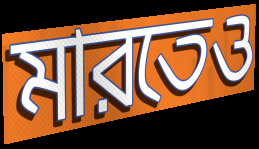
মারতেও